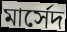
মার্সেদ